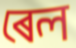
ৰেল